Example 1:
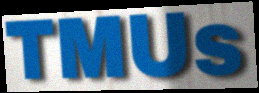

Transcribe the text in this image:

TMUs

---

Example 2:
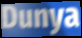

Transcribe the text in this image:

Dunya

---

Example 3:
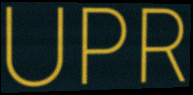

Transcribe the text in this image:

UPR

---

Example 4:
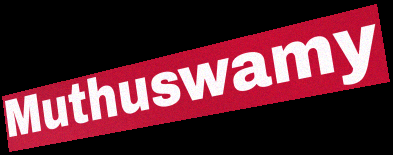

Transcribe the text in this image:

Muthuswamy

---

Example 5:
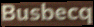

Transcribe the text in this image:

Busbecq